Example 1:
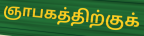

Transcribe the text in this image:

ஞாபகத்திற்குக்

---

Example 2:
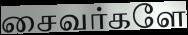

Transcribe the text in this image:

சைவர்களே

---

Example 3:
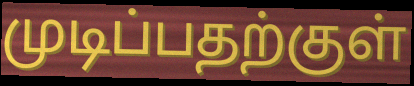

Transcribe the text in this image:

முடிப்பதற்குள்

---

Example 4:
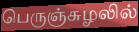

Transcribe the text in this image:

பெருஞ்சுழலில்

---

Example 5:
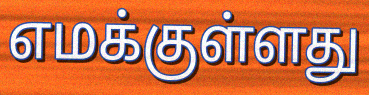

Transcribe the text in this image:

எமக்குள்ளது